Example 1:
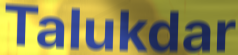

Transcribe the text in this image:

Talukdar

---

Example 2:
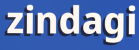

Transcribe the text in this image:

zindagi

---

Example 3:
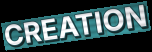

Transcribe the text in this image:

CREATION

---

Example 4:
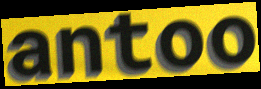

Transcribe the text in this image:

antoo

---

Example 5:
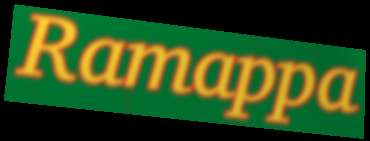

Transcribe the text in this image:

Ramappa